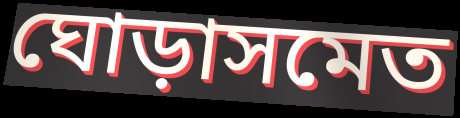
ঘোড়াসমেত